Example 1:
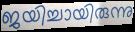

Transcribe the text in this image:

ജയിച്ചായിരുന്നു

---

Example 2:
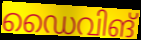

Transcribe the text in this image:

ഡൈവിങ്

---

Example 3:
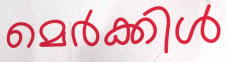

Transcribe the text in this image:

മെർക്കിൾ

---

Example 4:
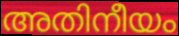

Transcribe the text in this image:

അതിനീയം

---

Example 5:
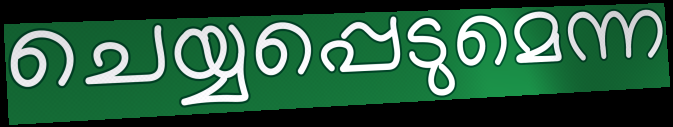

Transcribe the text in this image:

ചെയ്യപ്പെടുമെന്ന